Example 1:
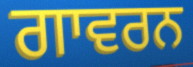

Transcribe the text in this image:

ਗਾਵਰਨ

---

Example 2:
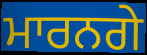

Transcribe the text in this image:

ਮਾਰਨਗੇ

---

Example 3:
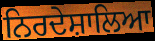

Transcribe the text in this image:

ਨਿਰਦੇਸ਼ਾਲਿਆ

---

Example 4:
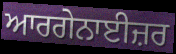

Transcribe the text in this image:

ਆਰਗੇਨਾਈਜ਼ਰ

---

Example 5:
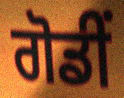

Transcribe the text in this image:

ਗੋਡੀਂ